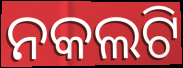
ନକଲଟି